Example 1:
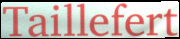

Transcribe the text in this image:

Taillefert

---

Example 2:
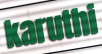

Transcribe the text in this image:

karuthi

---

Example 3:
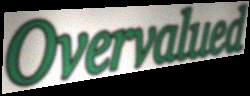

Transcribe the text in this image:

Overvalued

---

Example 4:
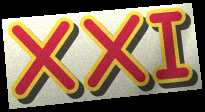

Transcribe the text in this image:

XXI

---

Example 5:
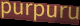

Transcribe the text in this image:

purpuru